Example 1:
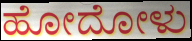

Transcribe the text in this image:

ಹೋದೋಳು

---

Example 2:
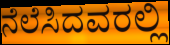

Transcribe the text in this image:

ನೆಲೆಸಿದವರಲ್ಲಿ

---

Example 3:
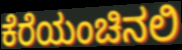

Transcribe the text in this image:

ಕೆರೆಯಂಚಿನಲಿ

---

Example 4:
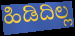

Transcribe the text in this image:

ಹಿಡಿದಿಲ್ಲ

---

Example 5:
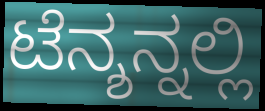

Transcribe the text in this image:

ಟೆನ್ಶನ್ನಲ್ಲಿ